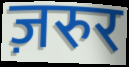
ज़रुर